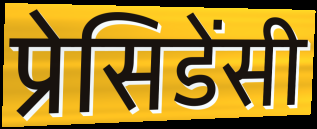
प्रेसिडेंसी